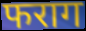
फराग